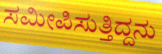
ಸಮೀಪಿಸುತ್ತಿದ್ದನು